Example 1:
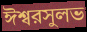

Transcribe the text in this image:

ঈশ্বরসুলভ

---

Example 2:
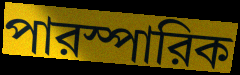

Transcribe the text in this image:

পারস্পারিক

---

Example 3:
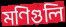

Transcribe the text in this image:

মণিগুলি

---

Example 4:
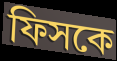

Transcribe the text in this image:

ফিসকে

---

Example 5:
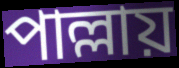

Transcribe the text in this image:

পাল্লায়